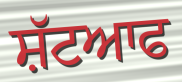
ਸ਼ੱਟਆਫ